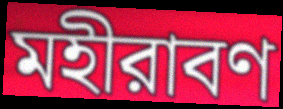
মহীরাবণ